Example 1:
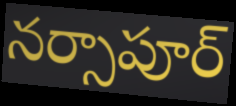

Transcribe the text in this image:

నర్సాపూర్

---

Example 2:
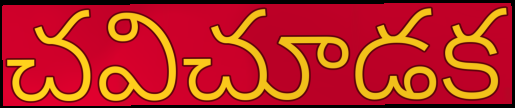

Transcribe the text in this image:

చవిచూడక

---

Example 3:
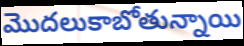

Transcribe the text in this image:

మొదలుకాబోతున్నాయి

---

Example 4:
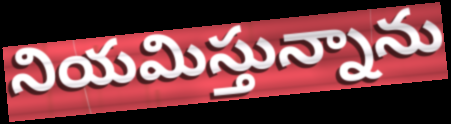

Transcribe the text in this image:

నియమిస్తున్నాను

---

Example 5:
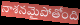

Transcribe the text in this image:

నాశనమైపోతోంది